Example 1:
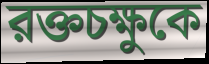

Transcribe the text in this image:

রক্তচক্ষুকে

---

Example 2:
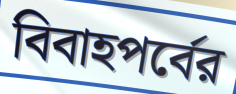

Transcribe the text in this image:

বিবাহপর্বের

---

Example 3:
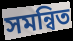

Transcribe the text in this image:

সমন্বিত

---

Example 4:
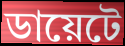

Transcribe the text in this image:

ডায়েটে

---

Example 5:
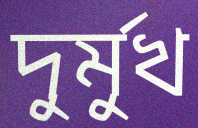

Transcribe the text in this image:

দুর্মুখ